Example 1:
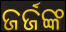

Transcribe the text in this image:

ଜର୍ଜଙ୍କ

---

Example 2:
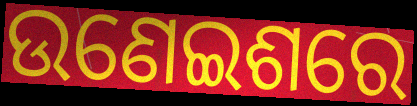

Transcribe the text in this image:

ଉଣେଇଶରେ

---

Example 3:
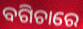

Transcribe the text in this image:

ବଗିଚାରେ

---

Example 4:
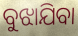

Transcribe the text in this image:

ବୁଝାଯିବା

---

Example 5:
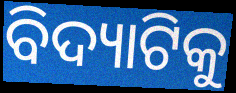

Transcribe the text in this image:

ବିଦ୍ୟାଟିକୁ